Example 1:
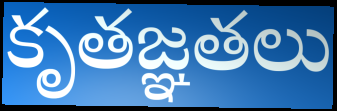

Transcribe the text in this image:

కృతజ్ఞతలు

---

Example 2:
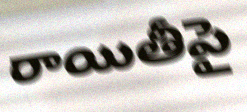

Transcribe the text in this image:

రాయితీపై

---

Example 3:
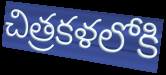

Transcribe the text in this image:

చిత్రకళలోకి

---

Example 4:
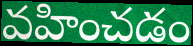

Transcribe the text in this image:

వహించడం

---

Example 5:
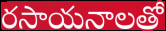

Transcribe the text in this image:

రసాయనాలతో